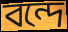
বন্দে